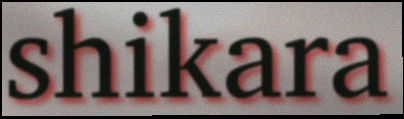
shikara